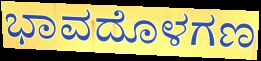
ಭಾವದೊಳಗಣ